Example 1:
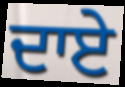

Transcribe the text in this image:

ਦਾਏ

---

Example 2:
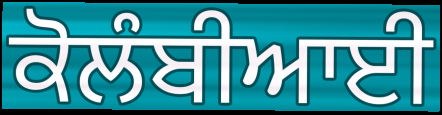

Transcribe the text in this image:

ਕੋਲੰਬੀਆਈ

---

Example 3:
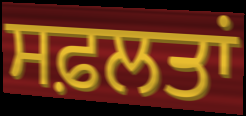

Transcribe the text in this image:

ਸਫ਼ਲਤਾਂ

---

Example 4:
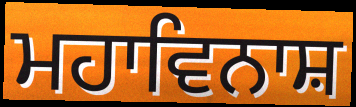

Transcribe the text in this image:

ਮਹਾਵਿਨਾਸ਼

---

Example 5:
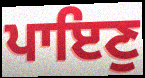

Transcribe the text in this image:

ਪਾਇਣੁ